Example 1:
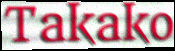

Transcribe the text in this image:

Takako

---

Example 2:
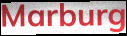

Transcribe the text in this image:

Marburg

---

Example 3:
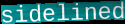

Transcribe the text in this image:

sidelined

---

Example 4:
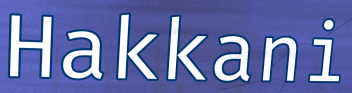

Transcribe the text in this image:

Hakkani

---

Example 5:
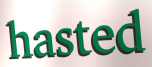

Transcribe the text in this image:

hasted